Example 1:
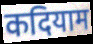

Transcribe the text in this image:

कदियाम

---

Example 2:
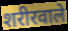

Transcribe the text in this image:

शरीरवाले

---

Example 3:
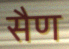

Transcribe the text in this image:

सैण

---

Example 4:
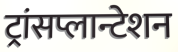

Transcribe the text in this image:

ट्रांसप्लान्टेशन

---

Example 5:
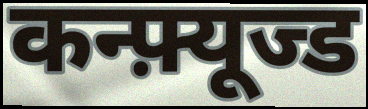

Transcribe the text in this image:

कन्फ़्यूज्ड